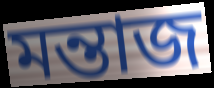
মন্তাজ